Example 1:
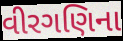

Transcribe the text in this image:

વીરગણિના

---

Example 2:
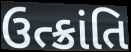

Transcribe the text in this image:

ઉત્ક્રાંતિ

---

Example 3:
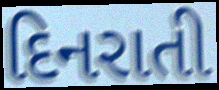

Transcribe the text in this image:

દિનરાતી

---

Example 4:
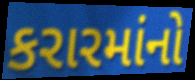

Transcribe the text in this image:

કરારમાંનો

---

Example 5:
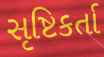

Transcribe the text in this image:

સૃષ્ટિકર્તા